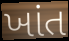
ખાંત